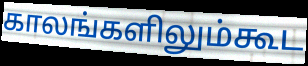
காலங்களிலும்கூட